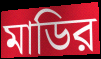
মাডির